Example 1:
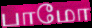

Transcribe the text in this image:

பாமோ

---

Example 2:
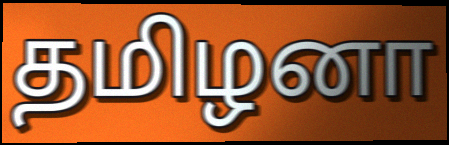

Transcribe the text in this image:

தமிழனா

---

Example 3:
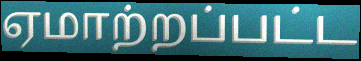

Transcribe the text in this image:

ஏமாற்றப்பட்ட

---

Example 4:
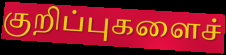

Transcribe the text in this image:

குறிப்புகளைச்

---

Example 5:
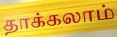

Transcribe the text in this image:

தாக்கலாம்